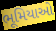
ભૂમિયાઓ